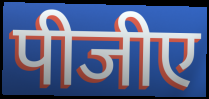
पीजीए